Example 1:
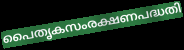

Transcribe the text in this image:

പൈതൃകസംരക്ഷണപദ്ധതി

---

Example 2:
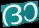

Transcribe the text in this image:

ദാ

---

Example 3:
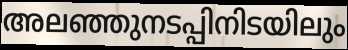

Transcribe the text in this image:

അലഞ്ഞുനടപ്പിനിടയിലും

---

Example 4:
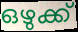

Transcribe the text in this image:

ഒഴുക്ക്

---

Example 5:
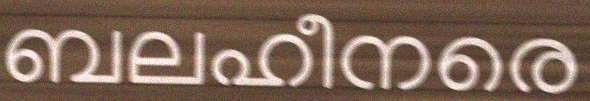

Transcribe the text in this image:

ബലഹീനരെ